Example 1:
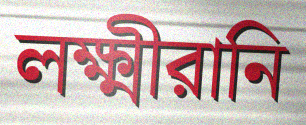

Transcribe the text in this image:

লক্ষ্মীরানি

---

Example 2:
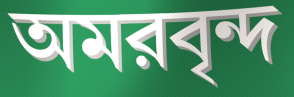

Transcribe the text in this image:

অমরবৃন্দ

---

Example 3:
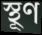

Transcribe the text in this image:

স্থূণ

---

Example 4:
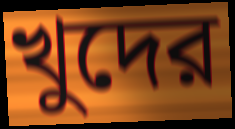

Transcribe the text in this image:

খুদের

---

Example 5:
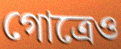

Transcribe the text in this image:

গোত্রেও